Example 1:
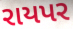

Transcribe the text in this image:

રાયપર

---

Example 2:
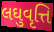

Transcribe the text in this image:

લઘુવૃત્તિ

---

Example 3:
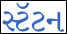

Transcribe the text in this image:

સ્ટૅટન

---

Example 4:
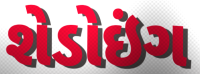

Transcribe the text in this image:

શેડોઇંગ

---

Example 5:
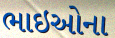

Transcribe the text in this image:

ભાઇઓના